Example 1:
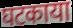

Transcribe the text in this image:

घटकाया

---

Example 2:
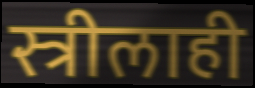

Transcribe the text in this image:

स्त्रीलाही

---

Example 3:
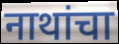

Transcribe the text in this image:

नाथांचा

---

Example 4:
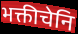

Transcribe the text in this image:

भक्तीचेनि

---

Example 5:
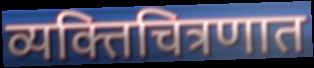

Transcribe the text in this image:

व्यक्तिचित्रणात